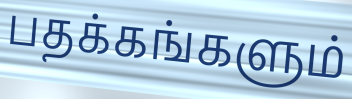
பதக்கங்களும்